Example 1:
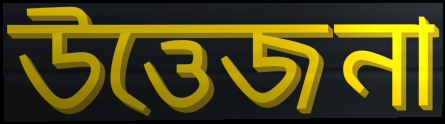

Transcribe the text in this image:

উত্তেজনা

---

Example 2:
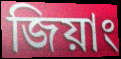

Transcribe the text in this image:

জিয়াং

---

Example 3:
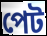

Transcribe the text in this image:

পেট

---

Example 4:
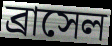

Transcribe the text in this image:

ব্রাসেল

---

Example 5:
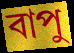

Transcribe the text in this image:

বাপু